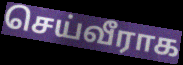
செய்வீராக